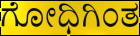
ಗೋಧಿಗಿಂತ